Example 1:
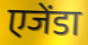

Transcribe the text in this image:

एजेंडा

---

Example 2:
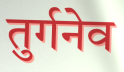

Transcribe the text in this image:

तुर्गनेव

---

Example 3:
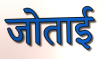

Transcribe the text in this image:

जोताई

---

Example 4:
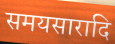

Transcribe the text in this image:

समयसारादि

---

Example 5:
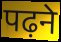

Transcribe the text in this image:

पढ़ने